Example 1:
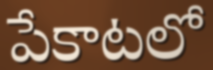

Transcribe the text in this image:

పేకాటలో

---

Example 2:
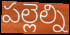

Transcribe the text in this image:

పల్లెల్ని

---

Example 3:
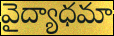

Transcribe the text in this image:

వైద్యాధమా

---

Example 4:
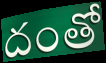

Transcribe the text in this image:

దంతో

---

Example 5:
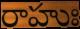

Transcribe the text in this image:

రాహుః